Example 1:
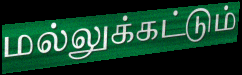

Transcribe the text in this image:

மல்லுக்கட்டும்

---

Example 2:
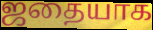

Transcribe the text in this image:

ஜதையாக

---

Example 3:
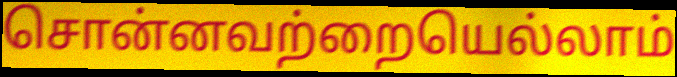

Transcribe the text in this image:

சொன்னவற்றையெல்லாம்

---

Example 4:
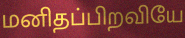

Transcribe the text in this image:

மனிதப்பிறவியே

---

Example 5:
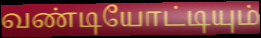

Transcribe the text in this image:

வண்டியோட்டியும்